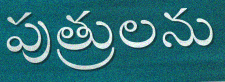
పుత్రులను